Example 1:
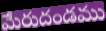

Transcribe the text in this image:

మేరుదండము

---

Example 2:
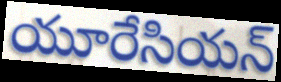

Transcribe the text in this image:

యూరేసియన్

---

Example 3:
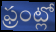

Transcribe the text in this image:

ఫ్రంట్లో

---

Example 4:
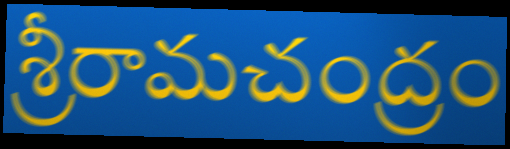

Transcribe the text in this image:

శ్రీరామచంద్రం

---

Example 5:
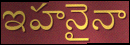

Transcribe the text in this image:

ఇహనైనా